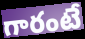
గారంటే